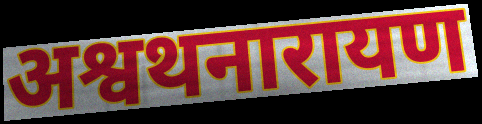
अश्वथनारायण